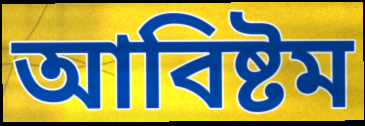
আবিষ্টম